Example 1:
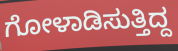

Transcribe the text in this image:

ಗೋಳಾಡಿಸುತ್ತಿದ್ದ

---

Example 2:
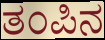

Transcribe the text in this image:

ತಂಪಿನ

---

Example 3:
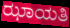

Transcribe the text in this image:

ಝಾಯತಿ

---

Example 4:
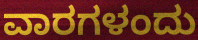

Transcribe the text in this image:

ವಾರಗಳಂದು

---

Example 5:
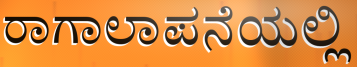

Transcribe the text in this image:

ರಾಗಾಲಾಪನೆಯಲ್ಲಿ